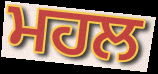
ਮਹਲ